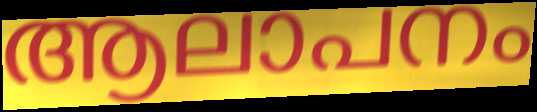
ആലാപനം